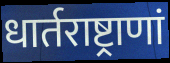
धार्तराष्ट्राणां